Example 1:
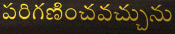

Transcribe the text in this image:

పరిగణించవచ్చును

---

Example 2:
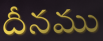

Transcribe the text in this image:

దీనము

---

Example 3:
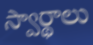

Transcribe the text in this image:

స్వార్థాలు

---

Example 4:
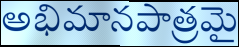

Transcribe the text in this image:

అభిమానపాత్రమై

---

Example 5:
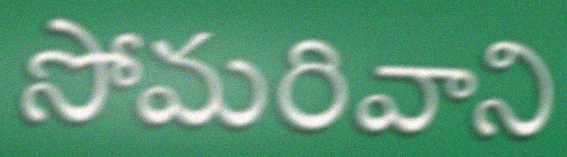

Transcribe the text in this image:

సోమరివాని